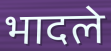
भादले